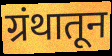
ग्रंथातून